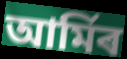
আৰ্মিৰ